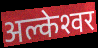
अल्केश्वर